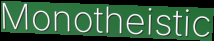
Monotheistic